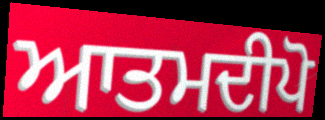
ਆਤਮਦੀਪੋ